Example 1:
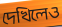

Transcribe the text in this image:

দেখিলেও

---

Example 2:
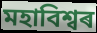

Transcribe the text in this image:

মহাবিশ্বৰ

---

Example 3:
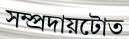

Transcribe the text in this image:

সম্প্ৰদায়টোত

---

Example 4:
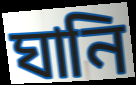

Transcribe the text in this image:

ঘানি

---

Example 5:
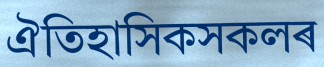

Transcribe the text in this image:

ঐতিহাসিকসকলৰ